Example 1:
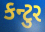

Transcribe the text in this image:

કન્ટુર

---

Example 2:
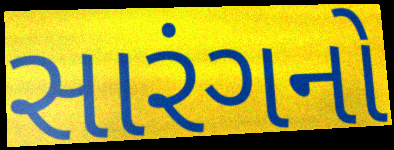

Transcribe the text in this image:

સારંગનો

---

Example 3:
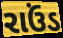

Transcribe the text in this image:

રાઉંડ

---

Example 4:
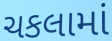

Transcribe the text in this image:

ચકલામાં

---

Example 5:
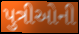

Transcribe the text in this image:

પુત્રીઓની